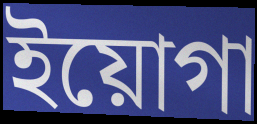
ইয়োগা